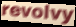
revolvy